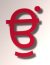
ਉਂ